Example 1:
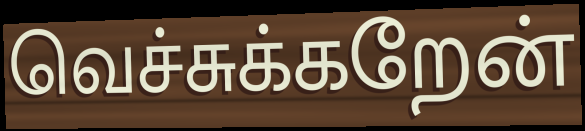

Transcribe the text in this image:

வெச்சுக்கறேன்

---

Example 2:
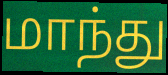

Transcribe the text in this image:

மாந்து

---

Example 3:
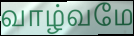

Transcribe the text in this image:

வாழ்வமே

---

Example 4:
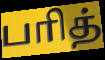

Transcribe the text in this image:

பரித்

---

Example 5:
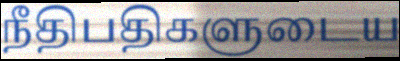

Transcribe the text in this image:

நீதிபதிகளுடைய